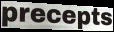
precepts